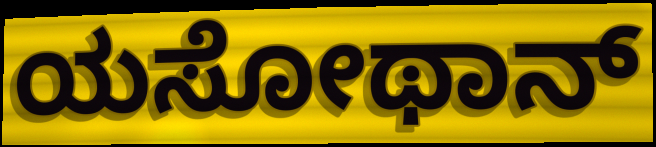
ಯಸೋಥಾನ್